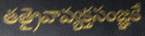
తత్రైవావ్యక్తసంజ్ఞకే